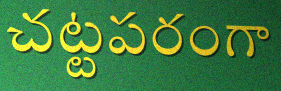
చట్టపరంగా